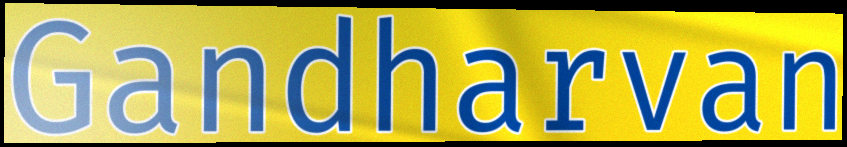
Gandharvan